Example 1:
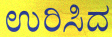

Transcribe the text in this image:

ಉರಿಸಿದ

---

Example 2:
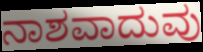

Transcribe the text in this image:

ನಾಶವಾದುವು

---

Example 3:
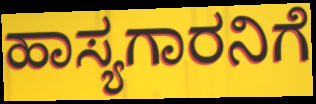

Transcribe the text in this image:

ಹಾಸ್ಯಗಾರನಿಗೆ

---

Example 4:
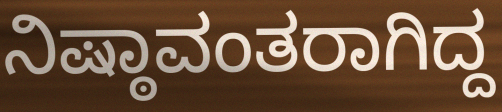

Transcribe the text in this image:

ನಿಷ್ಠಾವಂತರಾಗಿದ್ದ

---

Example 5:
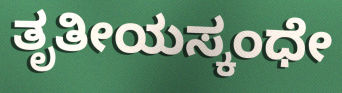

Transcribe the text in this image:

ತೃತೀಯಸ್ಕಂಧೇ